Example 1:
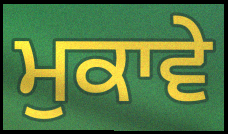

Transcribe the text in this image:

ਮੁਕਾਵੇ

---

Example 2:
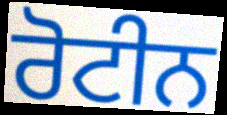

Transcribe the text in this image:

ਰੋਟੀਨ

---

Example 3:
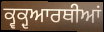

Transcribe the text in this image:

ਕ੍ਵਕ੍ਦਆਰਥੀਆਂ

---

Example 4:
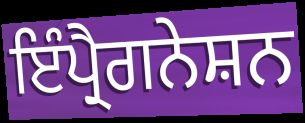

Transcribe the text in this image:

ਇੰਪ੍ਰੈਗਨੇਸ਼ਨ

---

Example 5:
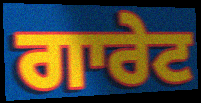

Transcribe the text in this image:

ਗਾਰੇਟ